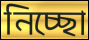
নিচ্ছো